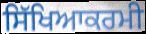
ਸਿੱਖਿਆਕਰਮੀ